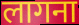
लागना